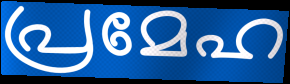
പ്രമേഹ